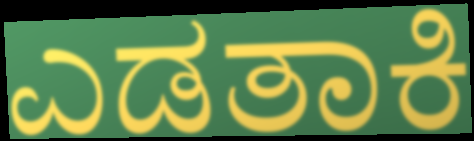
ಎಡತಾಕಿ